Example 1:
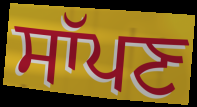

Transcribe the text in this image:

ਸਾੱਪਣ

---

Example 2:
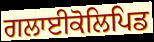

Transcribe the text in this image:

ਗਲਾਈਕੋਲਿਪਿਡ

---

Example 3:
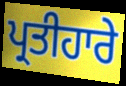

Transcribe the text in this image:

ਪ੍ਰਤੀਹਾਰੇ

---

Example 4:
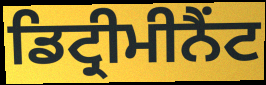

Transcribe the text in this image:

ਡਿਟ੍ਰੀਮੀਨੈਂਟ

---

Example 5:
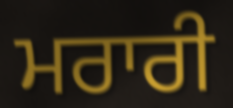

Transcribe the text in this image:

ਮਰਾਰੀ